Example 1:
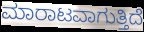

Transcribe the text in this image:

ಮಾರಾಟವಾಗುತ್ತಿದೆ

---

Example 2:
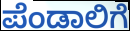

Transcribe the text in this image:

ಪೆಂಡಾಲಿಗೆ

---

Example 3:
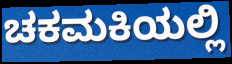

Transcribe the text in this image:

ಚಕಮಕಿಯಲ್ಲಿ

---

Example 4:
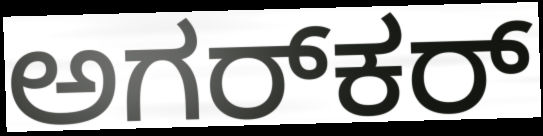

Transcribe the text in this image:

ಅಗರ್‌ಕರ್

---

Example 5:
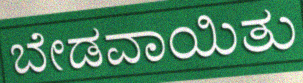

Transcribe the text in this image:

ಬೇಡವಾಯಿತು